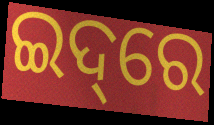
ଇଦ୍‌ରେ